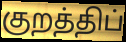
குறத்திப்